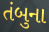
તંબુના